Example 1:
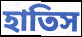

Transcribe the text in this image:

হাতিস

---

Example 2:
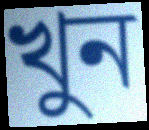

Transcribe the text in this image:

খুন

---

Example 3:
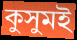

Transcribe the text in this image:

কুসুমই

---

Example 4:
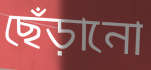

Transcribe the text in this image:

ছেঁড়ানো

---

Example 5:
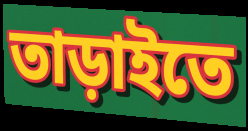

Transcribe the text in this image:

তাড়াইতে